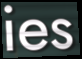
ies